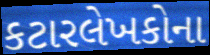
કટારલેખકોના